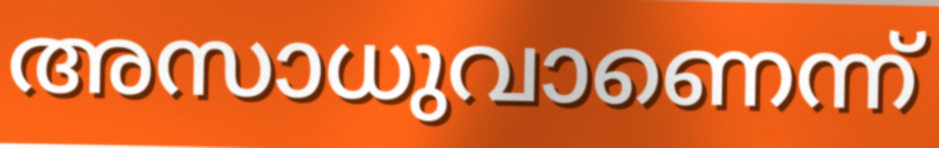
അസാധുവാണെന്ന്